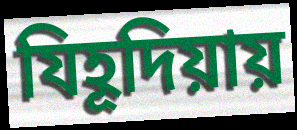
যিহূদিয়ায়